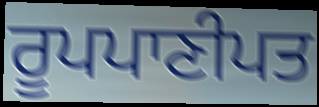
ਰੂਪਪਾਣੀਪਤ